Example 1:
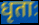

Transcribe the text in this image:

धृताः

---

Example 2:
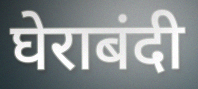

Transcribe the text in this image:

घेराबंदी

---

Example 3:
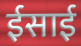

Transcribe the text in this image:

ईसाई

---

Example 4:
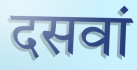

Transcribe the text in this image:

दसवां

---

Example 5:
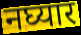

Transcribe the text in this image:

नघ्यार